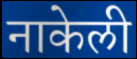
नाकेली